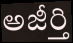
అజీర్తి